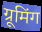
ग्रूमिंग